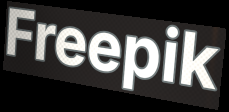
Freepik